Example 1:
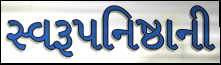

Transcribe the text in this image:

સ્વરૂપનિષ્ઠાની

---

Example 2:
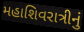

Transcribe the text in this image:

મહાશિવરાત્રીનું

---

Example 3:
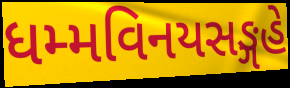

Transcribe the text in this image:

ધમ્મવિનયસઙ્ગહે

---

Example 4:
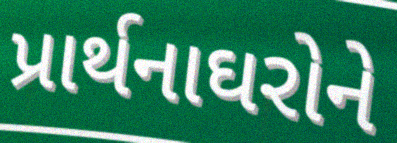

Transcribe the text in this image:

પ્રાર્થનાઘરોને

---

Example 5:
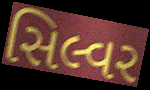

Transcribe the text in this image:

સિલ્વર